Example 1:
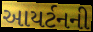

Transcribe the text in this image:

આયર્ટનની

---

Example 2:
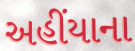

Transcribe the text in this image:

અહીંયાના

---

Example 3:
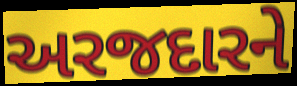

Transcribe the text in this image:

અરજદારને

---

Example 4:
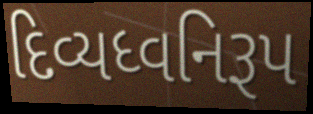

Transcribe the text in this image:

દિવ્યધ્વનિરૂપ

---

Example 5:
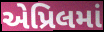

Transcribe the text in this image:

એપ્રિલમાં